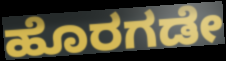
ಹೊರಗಡೇ